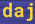
daj